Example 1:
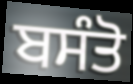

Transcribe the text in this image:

ਬਸੰਤੋ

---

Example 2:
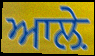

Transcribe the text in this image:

ਆਲ਼ੇ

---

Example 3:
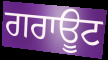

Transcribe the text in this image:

ਗਰਾਊਟ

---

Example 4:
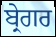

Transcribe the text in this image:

ਬ੍ਰੇਗਰ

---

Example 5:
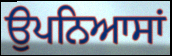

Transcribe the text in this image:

ਉਪਨਿਆਸਾਂ